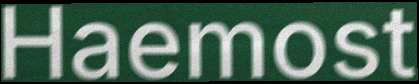
Haemost